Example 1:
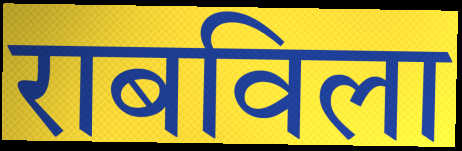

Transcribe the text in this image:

राबविला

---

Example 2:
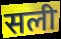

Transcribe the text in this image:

सली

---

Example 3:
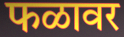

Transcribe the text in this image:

फळावर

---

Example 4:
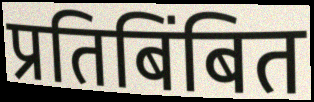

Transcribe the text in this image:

प्रतिबिंबित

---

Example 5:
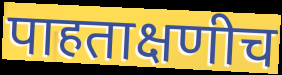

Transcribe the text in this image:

पाहताक्षणीच